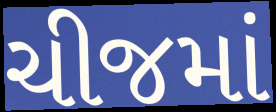
ચીજમાં